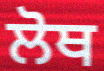
ਲੋਥ